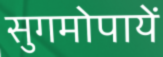
सुगमोपायें